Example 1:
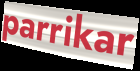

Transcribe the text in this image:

parrikar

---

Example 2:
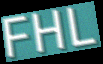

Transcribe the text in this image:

FHL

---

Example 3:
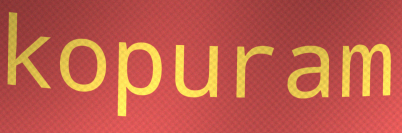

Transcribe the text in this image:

kopuram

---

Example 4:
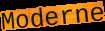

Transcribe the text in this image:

Moderne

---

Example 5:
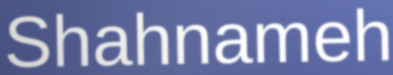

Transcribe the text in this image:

Shahnameh